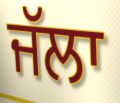
ਜੱਲਾ